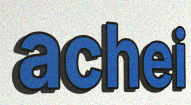
achei